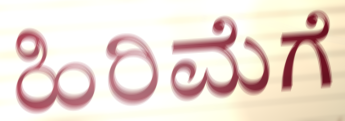
ಹಿರಿಮೆಗೆ